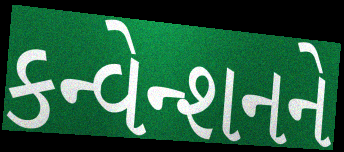
કન્વેન્શનને